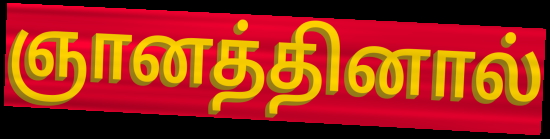
ஞானத்தினால்